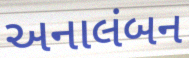
અનાલંબન